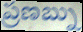
ప్రణబ్ను